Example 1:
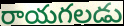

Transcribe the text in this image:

రాయగలడు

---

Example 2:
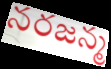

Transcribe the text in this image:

నరజన్మ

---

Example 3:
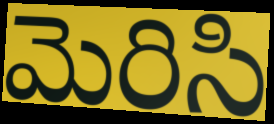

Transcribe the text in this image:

మెరిసి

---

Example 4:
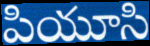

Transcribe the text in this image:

పియూసి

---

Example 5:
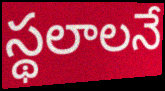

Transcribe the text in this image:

స్థలాలనే